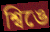
শ্বিঙে